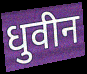
धुवीन